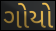
ગોયો